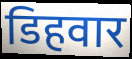
डिहवार